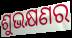
ଶୁଭକ୍ଷଣର